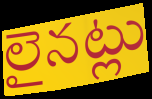
లైనట్లు